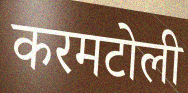
करमटोली